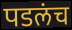
पडलंच